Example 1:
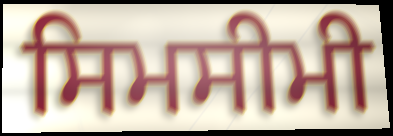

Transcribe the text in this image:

ਸਿਮਸੀਮੀ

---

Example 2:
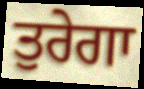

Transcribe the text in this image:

ਤੁਰੇਗਾ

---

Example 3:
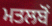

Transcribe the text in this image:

ਮਤਲਬੋਂ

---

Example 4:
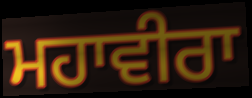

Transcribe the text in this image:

ਮਹਾਵੀਰਾ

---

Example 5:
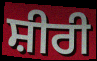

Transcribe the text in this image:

ਸ਼ੀਰੀ